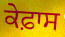
ਕੇਫ਼ਾਸ